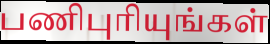
பணிபுரியுங்கள்